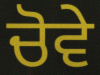
ਚੋਵੇ